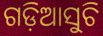
ଗଡ଼ିଆସୁଚି